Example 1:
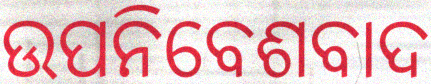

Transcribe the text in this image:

ଉପନିବେଶବାଦ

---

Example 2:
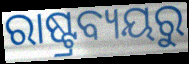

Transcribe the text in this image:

ରାଷ୍ଟ୍ରବ୍ୟୟରୁ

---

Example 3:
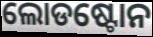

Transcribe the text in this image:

ଲୋଡଷ୍ଟୋନ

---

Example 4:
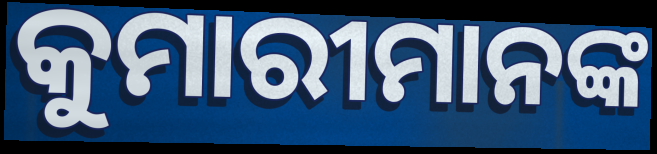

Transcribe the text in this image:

କୁମାରୀମାନଙ୍କ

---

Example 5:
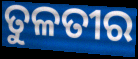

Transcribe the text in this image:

ତୁଳତୀର